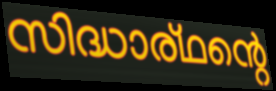
സിദ്ധാര്ഥന്റെ